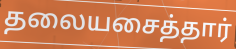
தலையசைத்தார்